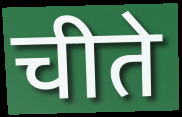
चीते